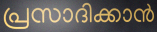
പ്രസാദിക്കാൻ